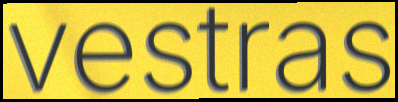
vestras